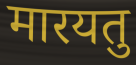
मारयतु